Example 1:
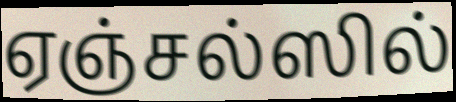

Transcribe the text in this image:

ஏஞ்சல்ஸில்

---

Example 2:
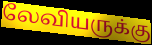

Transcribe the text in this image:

லேவியருக்கு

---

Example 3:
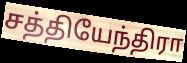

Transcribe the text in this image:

சத்தியேந்திரா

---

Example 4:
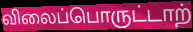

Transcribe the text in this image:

விலைப்பொருட்டாற்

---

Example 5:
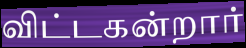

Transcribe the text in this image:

விட்டகன்றார்